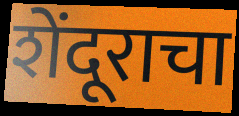
शेंदूराचा